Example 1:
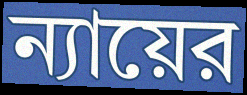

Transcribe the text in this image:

ন্যায়ের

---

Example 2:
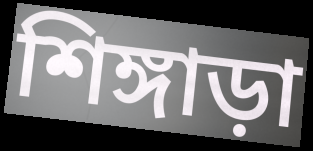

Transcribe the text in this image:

শিঙ্গাড়া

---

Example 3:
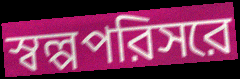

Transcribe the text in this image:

স্বল্পপরিসরে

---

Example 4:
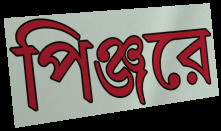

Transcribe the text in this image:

পিঞ্জরে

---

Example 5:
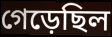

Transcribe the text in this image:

গেড়েছিল